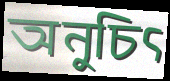
অনুচিৎ